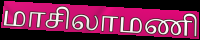
மாசிலாமணி